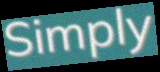
Simply